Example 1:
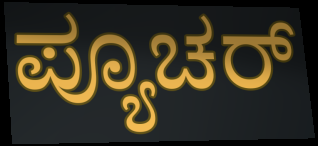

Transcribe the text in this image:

ಪ್ಯೂಚರ್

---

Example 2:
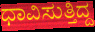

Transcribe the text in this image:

ಧಾವಿಸುತ್ತಿದ್ದ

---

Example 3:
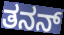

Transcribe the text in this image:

ತನನ್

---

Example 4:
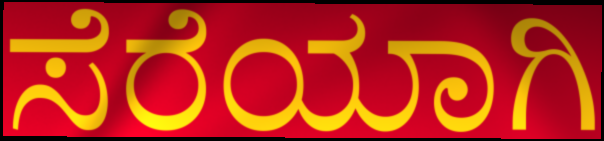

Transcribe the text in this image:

ಸೆರೆಯಾಗಿ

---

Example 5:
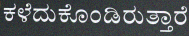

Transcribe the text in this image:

ಕಳೆದುಕೊಂಡಿರುತ್ತಾರೆ